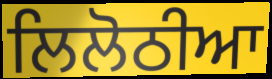
ਲਿਲੋਠੀਆ